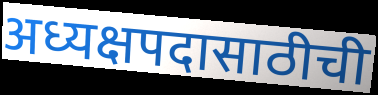
अध्यक्षपदासाठीची